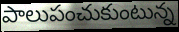
పాలుపంచుకుంటున్న